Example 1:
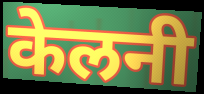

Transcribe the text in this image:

केलनी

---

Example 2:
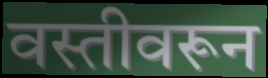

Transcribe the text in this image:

वस्तीवरून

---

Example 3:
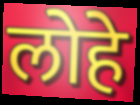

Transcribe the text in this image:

लोहे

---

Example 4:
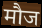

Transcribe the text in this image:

मौज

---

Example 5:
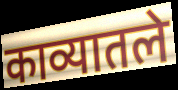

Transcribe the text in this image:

काव्यातले